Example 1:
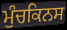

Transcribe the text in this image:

ਮੁੰਚਕਿਨਸ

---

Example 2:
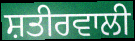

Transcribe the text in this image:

ਸ਼ਤੀਰਵਾਲੀ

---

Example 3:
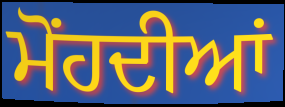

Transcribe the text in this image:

ਮੋਂਹਦੀਆਂ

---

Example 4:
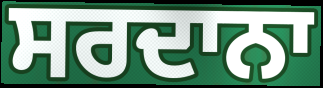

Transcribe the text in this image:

ਸਰਦਾਨਾ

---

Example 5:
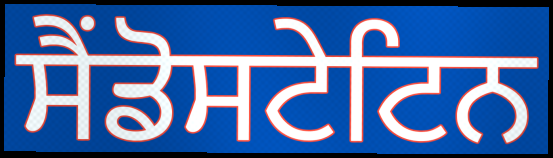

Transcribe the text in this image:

ਸੈਂਡੋਸਟੇਟਿਨ